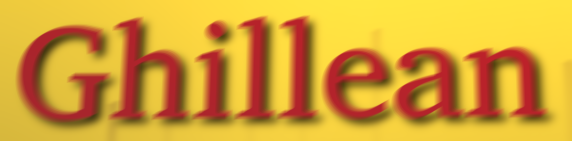
Ghillean